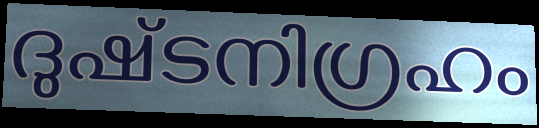
ദുഷ്‌ടനിഗ്രഹം